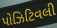
પોઝિટિવલી